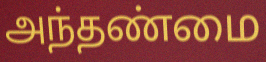
அந்தண்மை